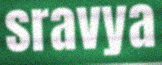
sravya